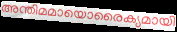
അന്തിമമായൊരൈക്യമായി